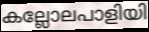
കല്ലോലപാളിയി